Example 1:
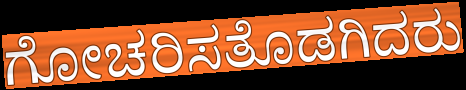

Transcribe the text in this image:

ಗೋಚರಿಸತೊಡಗಿದರು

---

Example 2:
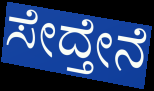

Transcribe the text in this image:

ಸೇದ್ತೇನೆ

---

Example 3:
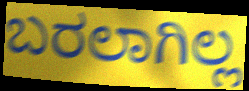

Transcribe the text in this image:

ಬರಲಾಗಿಲ್ಲ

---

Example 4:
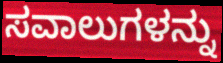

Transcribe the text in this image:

ಸವಾಲುಗಳನ್ನು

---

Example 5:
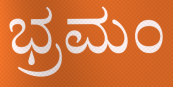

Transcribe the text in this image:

ಭ್ರಮಂ